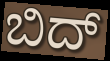
ಬಿದ್